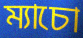
ম্যাচো